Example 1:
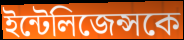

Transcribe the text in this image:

ইন্টেলিজেন্সকে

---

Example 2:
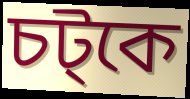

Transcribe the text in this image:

চট্‌কে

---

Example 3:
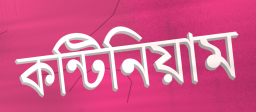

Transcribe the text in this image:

কন্টিনিয়াম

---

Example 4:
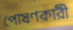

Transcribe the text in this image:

পোষণকারী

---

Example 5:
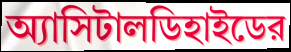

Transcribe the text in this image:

অ্যাসিটালডিহাইডের